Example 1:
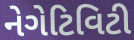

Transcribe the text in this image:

નેગેટિવિટી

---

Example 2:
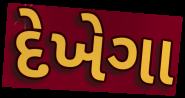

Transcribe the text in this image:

દેખેગા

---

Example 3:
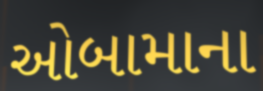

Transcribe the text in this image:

ઓબામાના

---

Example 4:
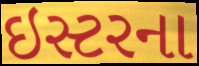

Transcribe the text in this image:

ઇસ્ટરના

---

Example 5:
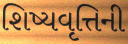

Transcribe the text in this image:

શિષ્યવૃત્તિની